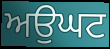
ਅਉਘਟ